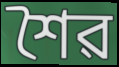
শৈৱ